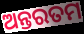
ଅନ୍ତରତମ